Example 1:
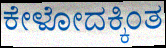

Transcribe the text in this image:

ಕೇಳೋದಕ್ಕಿಂತ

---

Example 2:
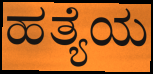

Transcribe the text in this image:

ಹತ್ಯೆಯ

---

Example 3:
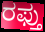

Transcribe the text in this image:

ರಫ್ತು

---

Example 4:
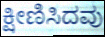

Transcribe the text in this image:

ಕ್ಷೀಣಿಸಿದವು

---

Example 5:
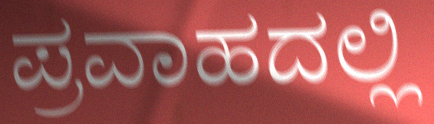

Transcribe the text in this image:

ಪ್ರವಾಹದಲ್ಲಿ